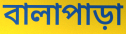
বালাপাড়া